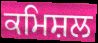
ਕਮਿਸ਼ਲ